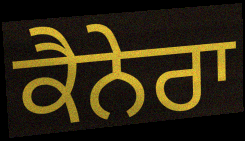
ਕੈਨੇਰਾ